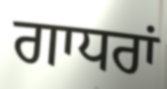
ਗਾਧਰਾਂ